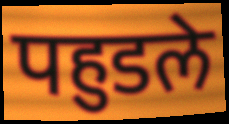
पहुडले